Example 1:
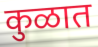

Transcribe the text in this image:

कुळात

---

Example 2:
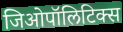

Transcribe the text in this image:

जिओपॉलिटिक्स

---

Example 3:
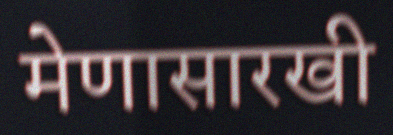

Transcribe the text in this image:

मेणासारखी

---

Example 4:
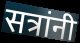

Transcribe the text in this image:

सत्रांनी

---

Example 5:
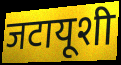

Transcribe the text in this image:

जटायूशी